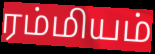
ரம்மியம்